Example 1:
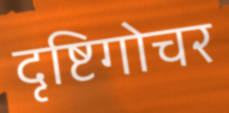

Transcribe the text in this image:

दृष्टिगोचर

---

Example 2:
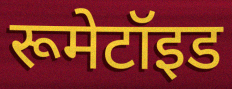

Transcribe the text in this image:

रूमेटॉइड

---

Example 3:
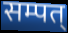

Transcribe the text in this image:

सम्पत्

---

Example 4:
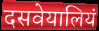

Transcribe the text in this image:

दसवेयालियं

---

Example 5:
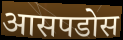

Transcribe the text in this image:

आसपडोस